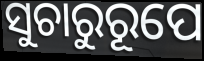
ସୁଚାରୁରୂପେ